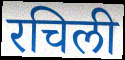
रचिली